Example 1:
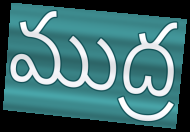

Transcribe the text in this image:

ముద్ర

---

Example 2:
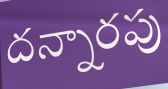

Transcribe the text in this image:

దన్నారపు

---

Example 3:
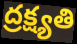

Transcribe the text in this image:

ద్రక్ష్యతి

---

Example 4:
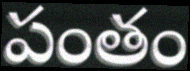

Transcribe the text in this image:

పంతం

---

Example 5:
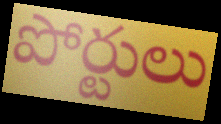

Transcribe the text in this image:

పోర్టులు